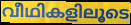
വീഥികളിലൂടെ